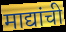
माद्यांची